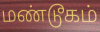
மண்டூகம்